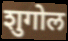
शुगोल